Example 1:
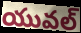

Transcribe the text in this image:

యువల్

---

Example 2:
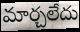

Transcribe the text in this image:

మార్చలేదు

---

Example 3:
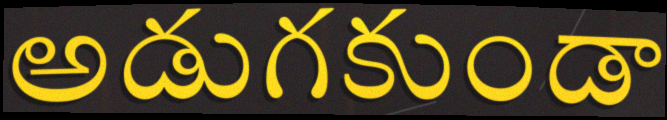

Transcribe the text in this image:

అడుగకుండా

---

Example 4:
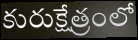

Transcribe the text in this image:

కురుక్షేత్రంలో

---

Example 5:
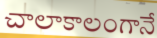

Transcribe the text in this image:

చాలాకాలంగానే